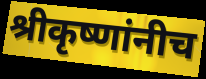
श्रीकृष्णांनीच